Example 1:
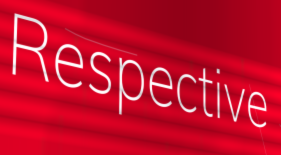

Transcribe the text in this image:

Respective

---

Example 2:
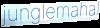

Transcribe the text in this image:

junglemahal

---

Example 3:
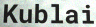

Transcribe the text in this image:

Kublai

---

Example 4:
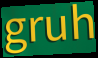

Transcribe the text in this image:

gruh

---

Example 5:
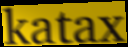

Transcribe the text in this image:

katax